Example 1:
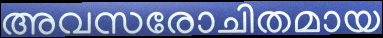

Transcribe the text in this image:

അവസരോചിതമായ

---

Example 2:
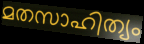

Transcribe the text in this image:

മതസാഹിത്യം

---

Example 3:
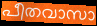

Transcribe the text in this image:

പീതവാസാ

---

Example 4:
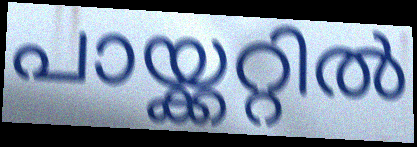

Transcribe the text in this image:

പായ്ക്കറ്റിൽ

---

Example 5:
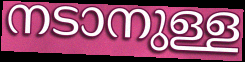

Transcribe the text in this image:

നടാനുള്ള